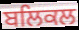
ਬਲਿਕਲ